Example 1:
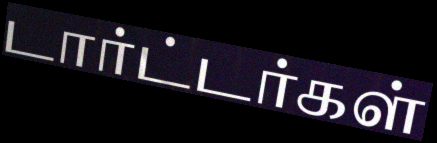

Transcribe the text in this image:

டார்ட்டர்கள்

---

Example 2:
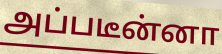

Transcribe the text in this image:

அப்படீன்னா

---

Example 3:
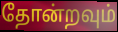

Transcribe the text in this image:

தோன்றவும்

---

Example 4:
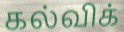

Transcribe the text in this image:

கல்விக்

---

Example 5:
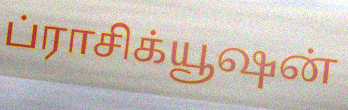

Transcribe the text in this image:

ப்ராசிக்யூஷன்